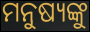
ମନୁଷ୍ୟଙ୍କୁ